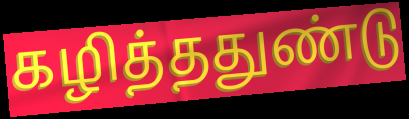
கழித்ததுண்டு